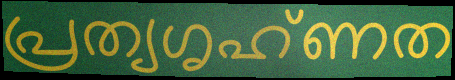
പ്രത്യഗൃഹ്ണത